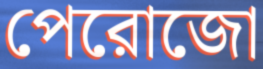
পেরোজো